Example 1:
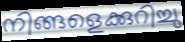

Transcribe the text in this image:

നിങ്ങളെക്കുറിച്ചു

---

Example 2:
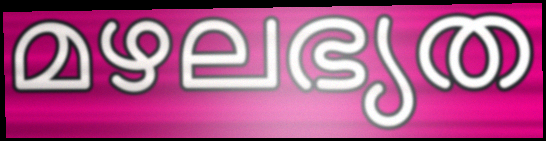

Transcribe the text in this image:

മഴലഭ്യത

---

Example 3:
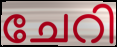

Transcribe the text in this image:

ചേറി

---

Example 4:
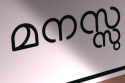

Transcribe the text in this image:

മനസ്സു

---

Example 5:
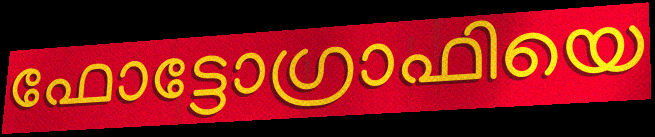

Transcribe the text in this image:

ഫോട്ടോഗ്രാഫിയെ